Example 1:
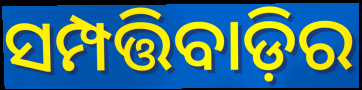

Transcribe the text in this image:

ସମ୍ପତ୍ତିବାଡ଼ିର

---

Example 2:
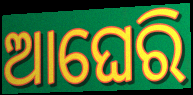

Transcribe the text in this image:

ଆଘେରି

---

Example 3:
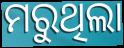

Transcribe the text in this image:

ମରୁଥିଲା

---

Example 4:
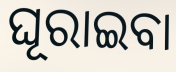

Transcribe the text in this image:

ଘୂରାଇବା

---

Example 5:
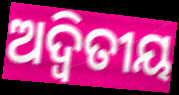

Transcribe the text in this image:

ଅଦ୍ବିତୀୟ